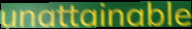
unattainable